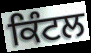
ਕਿੰਟਲ